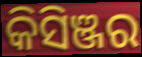
କିସିଞ୍ଜର